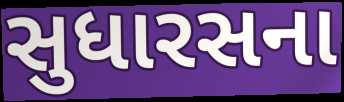
સુધારસના